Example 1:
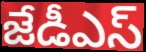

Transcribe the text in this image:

జేడీఎస్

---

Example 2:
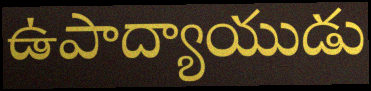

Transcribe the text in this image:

ఉపాద్యాయుడు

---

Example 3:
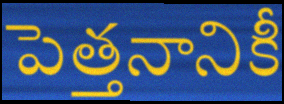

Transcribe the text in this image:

పెత్తనానికీ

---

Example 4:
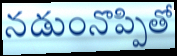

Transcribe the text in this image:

నడుంనొప్పితో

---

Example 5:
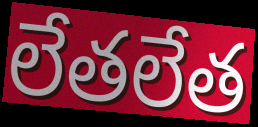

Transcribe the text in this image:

లేతలేత